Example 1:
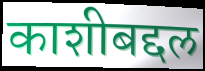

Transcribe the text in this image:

काशीबद्दल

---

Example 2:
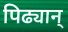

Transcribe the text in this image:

पिढ्यान्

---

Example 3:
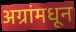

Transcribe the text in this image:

अग्रांमधून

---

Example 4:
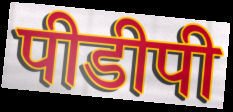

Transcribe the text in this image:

पीडीपी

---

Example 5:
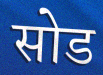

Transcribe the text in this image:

सोड